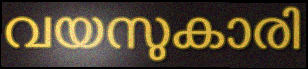
വയസുകാരി